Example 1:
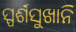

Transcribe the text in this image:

ସ୍ପର୍ଶସୁଖାନି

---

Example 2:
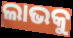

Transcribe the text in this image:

ଲାଭକୁ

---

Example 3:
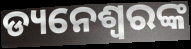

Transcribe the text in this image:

ଡ୍ୟନେଶ୍ୱରଙ୍କ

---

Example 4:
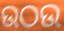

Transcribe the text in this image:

ଉଠଉ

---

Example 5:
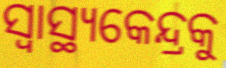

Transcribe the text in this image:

ସ୍ୱାସ୍ଥ୍ୟକେନ୍ଦ୍ରକୁ